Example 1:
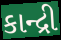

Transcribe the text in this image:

કાન્દ્રી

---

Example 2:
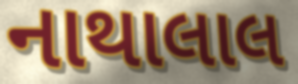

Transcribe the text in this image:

નાથાલાલ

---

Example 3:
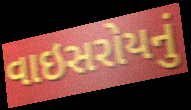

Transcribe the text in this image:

વાઇસરોયનું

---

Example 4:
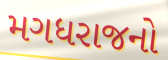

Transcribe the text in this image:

મગધરાજનો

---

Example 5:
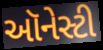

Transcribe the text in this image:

ઑનેસ્ટી